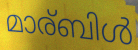
മാര്ബിൾ